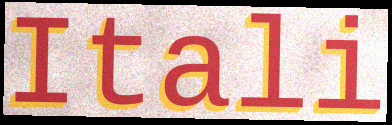
Itali